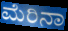
ಮೆರಿನಾ